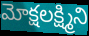
మోక్షలక్ష్మిని